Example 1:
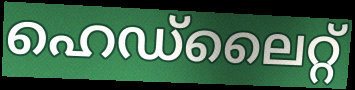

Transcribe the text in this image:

ഹെഡ്ലൈറ്റ്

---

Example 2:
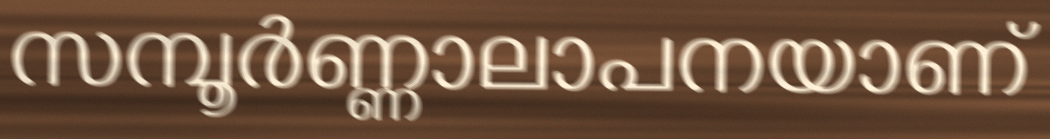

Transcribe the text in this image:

സമ്പൂർണ്ണാലാപനയാണ്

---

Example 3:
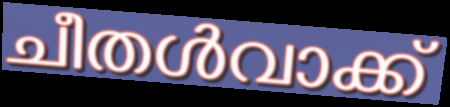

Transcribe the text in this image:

ചീതൾവാക്ക്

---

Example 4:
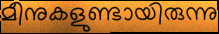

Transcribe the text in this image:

മീനുകളുണ്ടായിരുന്നു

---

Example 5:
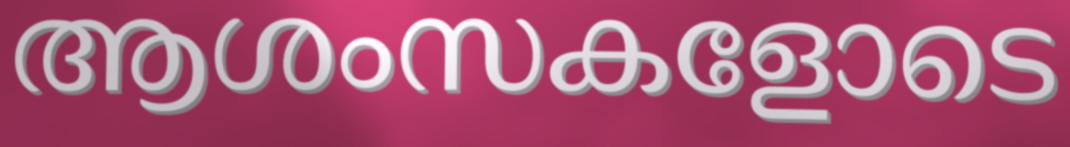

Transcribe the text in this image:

ആശംസകളോടെ